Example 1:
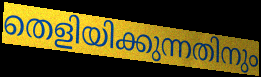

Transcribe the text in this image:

തെളിയിക്കുന്നതിനും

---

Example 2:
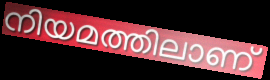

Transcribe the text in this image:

നിയമത്തിലാണ്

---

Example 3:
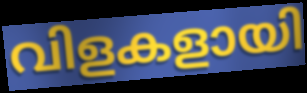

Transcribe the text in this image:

വിളകളായി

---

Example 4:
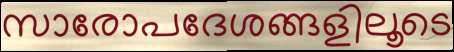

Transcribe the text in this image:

സാരോപദേശങ്ങളിലൂടെ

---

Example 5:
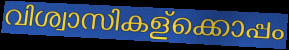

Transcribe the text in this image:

വിശ്വാസികള്ക്കൊപ്പം